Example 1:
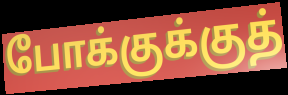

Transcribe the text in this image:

போக்குக்குத்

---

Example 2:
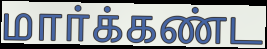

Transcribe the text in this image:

மார்க்கண்ட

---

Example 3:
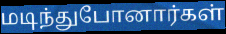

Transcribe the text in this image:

மடிந்துபோனார்கள்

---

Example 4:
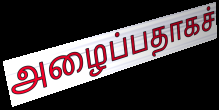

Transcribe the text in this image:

அழைப்பதாகச்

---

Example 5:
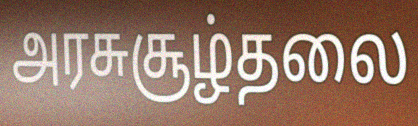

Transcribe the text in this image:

அரசுசூழ்தலை